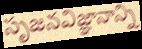
సృజనవిజ్ఞానాన్ని